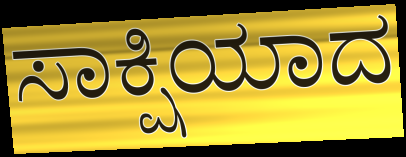
ಸಾಕ್ಷಿಯಾದ